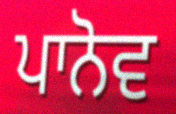
ਪਾਨੋਵ